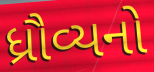
ધ્રૌવ્યનો